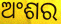
ଅଂଶର